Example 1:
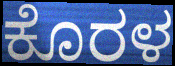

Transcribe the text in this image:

ಕೊರಳ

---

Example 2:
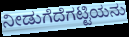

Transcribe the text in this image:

ನೀಡುಗೆದೆಗಟ್ಟಿಯನು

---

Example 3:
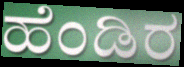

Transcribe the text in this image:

ಹೆಂಡಿರ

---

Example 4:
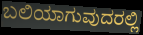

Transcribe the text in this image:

ಬಲಿಯಾಗುವುದರಲ್ಲಿ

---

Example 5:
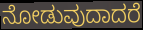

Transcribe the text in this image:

ನೋಡುವುದಾದರೆ